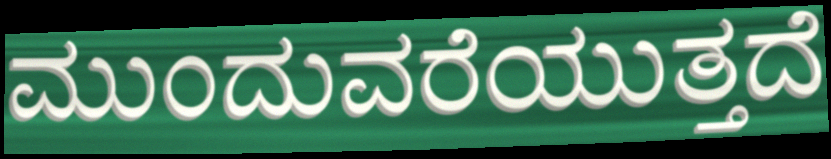
ಮುಂದುವರೆಯುತ್ತದೆ